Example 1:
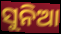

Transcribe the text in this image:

ସୁନିଆ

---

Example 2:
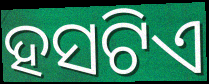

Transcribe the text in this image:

ହସଟିଏ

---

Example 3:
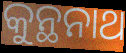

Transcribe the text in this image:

କୁନ୍ଥନାଥ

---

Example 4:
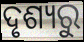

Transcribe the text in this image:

ଦୃଶ୍ୟରୁ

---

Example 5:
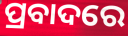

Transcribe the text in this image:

ପ୍ରବାଦରେ